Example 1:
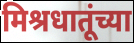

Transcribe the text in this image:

मिश्रधातूंच्या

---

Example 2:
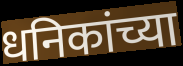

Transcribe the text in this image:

धनिकांच्या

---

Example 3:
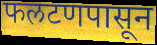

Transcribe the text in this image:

फलटणपासून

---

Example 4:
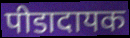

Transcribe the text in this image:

पीडादायक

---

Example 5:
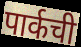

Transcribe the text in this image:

पार्कची